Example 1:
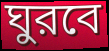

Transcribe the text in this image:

ঘুরবে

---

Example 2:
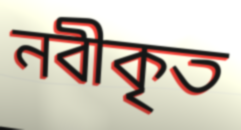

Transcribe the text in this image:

নবীকৃত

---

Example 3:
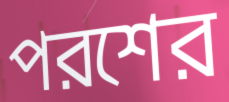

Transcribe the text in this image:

পরশের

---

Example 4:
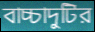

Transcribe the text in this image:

বাচ্চাদুটির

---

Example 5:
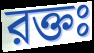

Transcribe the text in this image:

রক্তঃ